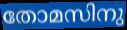
തോമസിനു